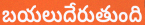
బయలుదేరుతుంది